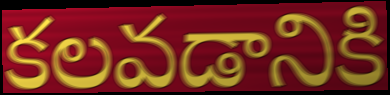
కలవడానికి